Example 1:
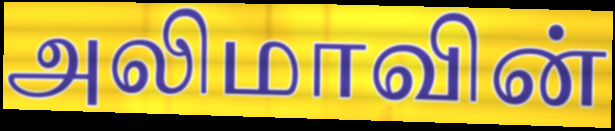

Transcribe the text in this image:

அலிமாவின்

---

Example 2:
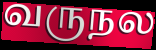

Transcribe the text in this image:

வருநல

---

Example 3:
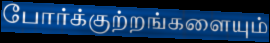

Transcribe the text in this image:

போர்க்குற்றங்களையும்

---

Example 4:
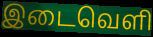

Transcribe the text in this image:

இடைவெளி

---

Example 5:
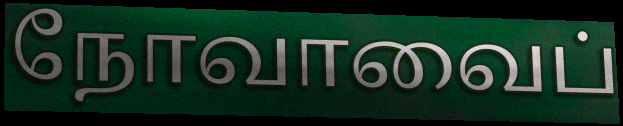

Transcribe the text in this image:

நோவாவைப்